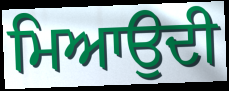
ਮਿਆਉਦੀ